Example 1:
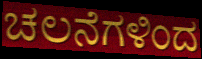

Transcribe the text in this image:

ಚಲನೆಗಳಿಂದ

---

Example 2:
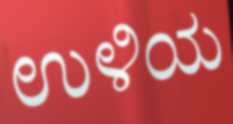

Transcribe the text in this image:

ಉಳಿಯ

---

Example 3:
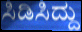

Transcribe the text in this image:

ಸಿಡಿಸಿದ್ದು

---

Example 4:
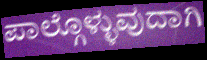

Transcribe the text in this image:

ಪಾಲ್ಗೊಳ್ಳುವುದಾಗಿ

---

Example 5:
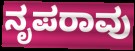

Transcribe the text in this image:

ನೃಪರಾವು